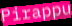
Pirappu